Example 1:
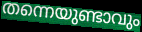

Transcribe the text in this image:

തന്നെയുണ്ടാവും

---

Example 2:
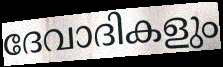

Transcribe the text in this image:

ദേവാദികളും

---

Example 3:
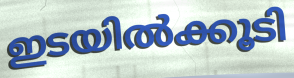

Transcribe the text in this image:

ഇടയിൽക്കൂടി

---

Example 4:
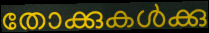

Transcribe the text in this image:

തോക്കുകൾക്കു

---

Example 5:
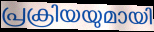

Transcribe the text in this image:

പ്രക്രിയയുമായി